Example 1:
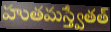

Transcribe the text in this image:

హుతమస్త్వేతత్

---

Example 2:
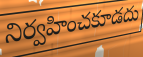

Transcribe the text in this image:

నిర్వహించకూడదు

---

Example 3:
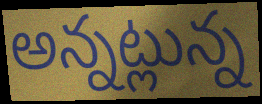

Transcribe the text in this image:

అన్నట్లున్న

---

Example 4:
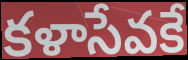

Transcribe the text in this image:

కళాసేవకే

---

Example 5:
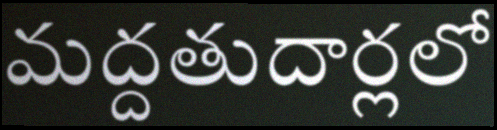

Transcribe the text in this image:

మద్దతుదార్లలో